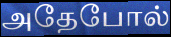
அதேபோல்